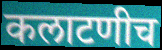
कलाटणीच